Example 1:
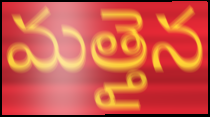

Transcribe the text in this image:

మత్తైన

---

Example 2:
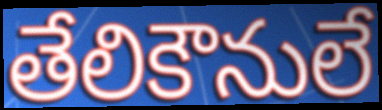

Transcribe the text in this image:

తేలికౌనులే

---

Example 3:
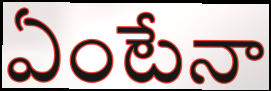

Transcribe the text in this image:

ఏంటేనా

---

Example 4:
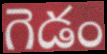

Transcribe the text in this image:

గెడం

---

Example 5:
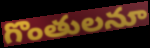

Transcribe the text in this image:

గొంతులనూ